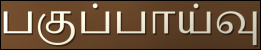
பகுப்பாய்வு